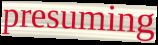
presuming